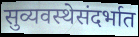
सुव्यवस्थेसंदर्भात